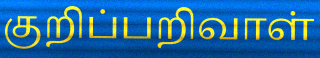
குறிப்பறிவாள்